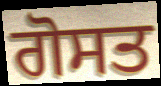
ਗੋਸਤ